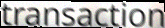
transaction